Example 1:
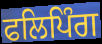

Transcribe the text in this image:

ਫਲਿਪਿੰਗ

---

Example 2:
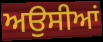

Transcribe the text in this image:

ਅਉਸੀਆਂ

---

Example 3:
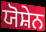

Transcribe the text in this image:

ਯੋਸ਼ੇਨ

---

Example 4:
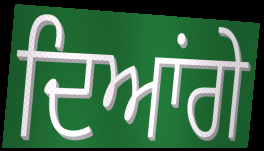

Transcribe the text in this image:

ਦਿਆਂਗੇ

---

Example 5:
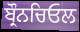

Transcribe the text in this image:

ਬ੍ਰੌਨਚਿਓਲ